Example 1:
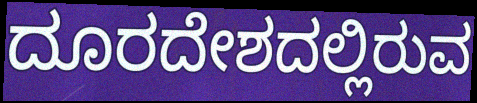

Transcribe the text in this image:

ದೂರದೇಶದಲ್ಲಿರುವ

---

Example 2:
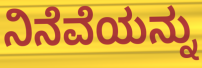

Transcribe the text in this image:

ನಿನೆವೆಯನ್ನು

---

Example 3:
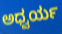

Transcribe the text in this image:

ಅಧ್ವರ್ಯ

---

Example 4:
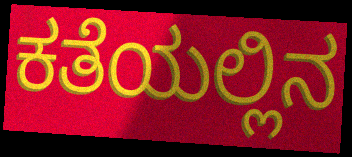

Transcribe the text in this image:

ಕತೆಯಲ್ಲಿನ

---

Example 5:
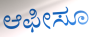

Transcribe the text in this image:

ಆಫೀಸೂ